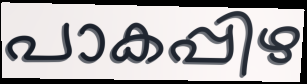
പാകപ്പിഴ